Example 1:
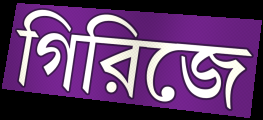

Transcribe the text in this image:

গিরিজে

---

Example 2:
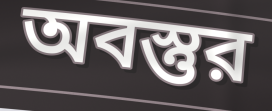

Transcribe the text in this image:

অবস্তুর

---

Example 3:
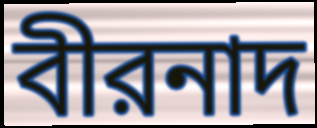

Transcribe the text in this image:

বীরনাদ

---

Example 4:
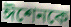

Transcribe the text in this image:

ঈশেনকে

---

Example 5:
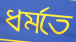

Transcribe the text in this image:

ধর্মতে